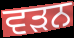
ਵਡ਼ਨ